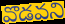
వొడవని